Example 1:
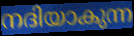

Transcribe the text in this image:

നദിയാകുന്ന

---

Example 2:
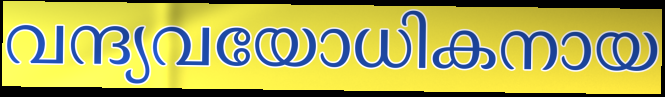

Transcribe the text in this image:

വന്ദ്യവയോധികനായ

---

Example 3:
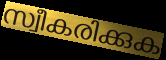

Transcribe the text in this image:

സ്വീകരിക്കുക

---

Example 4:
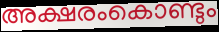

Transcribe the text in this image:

അക്ഷരംകൊണ്ടും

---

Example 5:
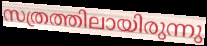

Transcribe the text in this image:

സത്രത്തിലായിരുന്നു